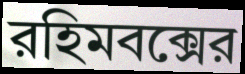
রহিমবক্সের